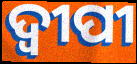
ଦ୍ୱୀପୀ